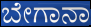
ಬೇಗಾನಾ